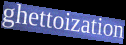
ghettoization